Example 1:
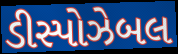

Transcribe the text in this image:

ડીસ્પોઝેબલ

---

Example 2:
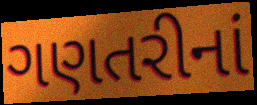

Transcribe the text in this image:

ગણતરીનાં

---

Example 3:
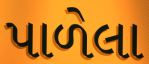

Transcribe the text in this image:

પાળેલા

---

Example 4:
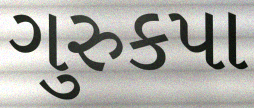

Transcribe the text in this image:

ગુરુકપા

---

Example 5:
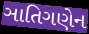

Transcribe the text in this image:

ઞાતિગણેન